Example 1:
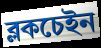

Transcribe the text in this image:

ব্লকচেইন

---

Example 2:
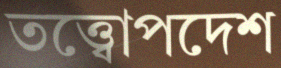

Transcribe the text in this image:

তত্ত্বোপদেশ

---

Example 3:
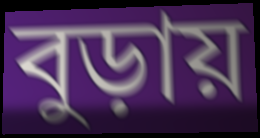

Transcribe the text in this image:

বুড়ায়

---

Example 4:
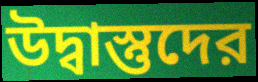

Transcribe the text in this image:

উদ্বাস্তুদের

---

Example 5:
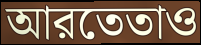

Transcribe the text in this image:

আরতেতাও